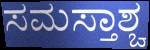
ಸಮಸ್ತಾಶ್ಚ